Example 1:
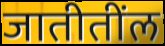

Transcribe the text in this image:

जातीतींल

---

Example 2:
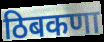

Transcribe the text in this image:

ठिबकणा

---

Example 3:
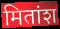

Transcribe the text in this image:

मितांश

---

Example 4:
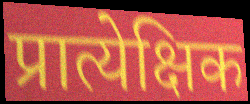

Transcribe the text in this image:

प्रात्येक्षिक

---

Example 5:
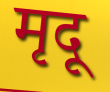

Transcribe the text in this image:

मृदू